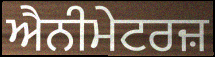
ਐਨੀਮੇਟਰਜ਼